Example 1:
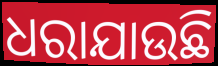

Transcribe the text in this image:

ଧରାଯାଉଛି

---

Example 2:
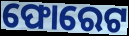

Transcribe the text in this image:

ଫୋରେଟ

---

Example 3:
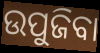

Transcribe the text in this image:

ଉପୁଜିବା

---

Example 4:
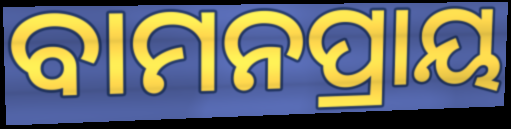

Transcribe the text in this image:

ବାମନପ୍ରାୟ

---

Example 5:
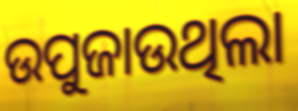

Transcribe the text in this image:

ଉପୁଜାଉଥିଲା